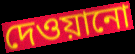
দেওয়ানো